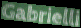
Gabrielli